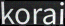
korai